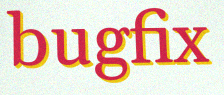
bugfix